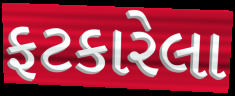
ફટકારેલા